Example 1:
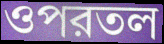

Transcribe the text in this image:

ওপরতল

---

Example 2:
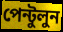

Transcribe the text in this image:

পেন্টুলুন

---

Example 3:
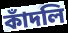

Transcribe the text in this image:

কাঁদলি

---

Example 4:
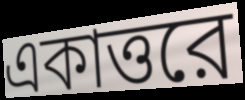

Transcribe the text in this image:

একাত্তরে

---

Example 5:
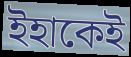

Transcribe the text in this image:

ইহাকেই